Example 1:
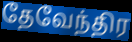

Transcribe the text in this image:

தேவேந்திர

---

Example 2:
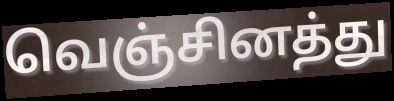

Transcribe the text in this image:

வெஞ்சினத்து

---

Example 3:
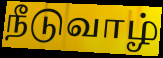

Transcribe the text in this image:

நீடுவாழ்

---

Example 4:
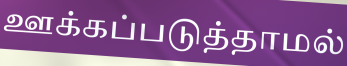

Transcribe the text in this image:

ஊக்கப்படுத்தாமல்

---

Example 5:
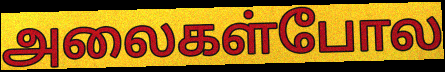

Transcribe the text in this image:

அலைகள்போல